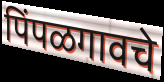
पिंपळगावचे